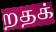
றதக்